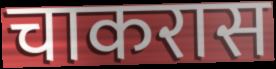
चाकरास